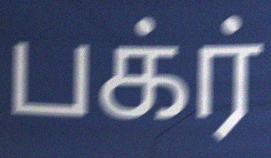
பக்ர்